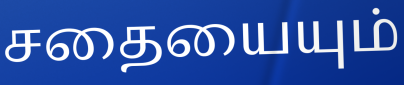
சதையையும்